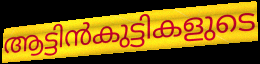
ആട്ടിൻകുട്ടികളുടെ